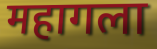
महागला